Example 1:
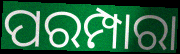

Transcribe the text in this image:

ପରମ୍ପାରା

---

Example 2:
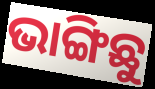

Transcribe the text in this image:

ଭାଙ୍ଗିଛୁ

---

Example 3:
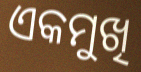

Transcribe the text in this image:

ଏକମୁଖି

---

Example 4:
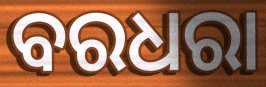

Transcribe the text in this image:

ବରଧରା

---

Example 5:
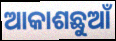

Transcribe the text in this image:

ଆକାଶଛୁଆଁ